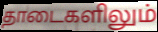
தாடைகளிலும்